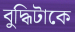
বুদ্ধিটাকে